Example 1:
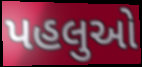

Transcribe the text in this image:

પહલુઓ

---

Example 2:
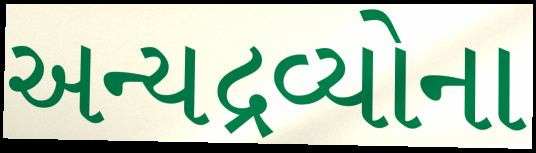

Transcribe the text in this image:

અન્યદ્રવ્યોના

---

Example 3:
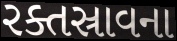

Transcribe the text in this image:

રક્તસ્રાવના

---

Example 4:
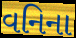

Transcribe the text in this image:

વનિના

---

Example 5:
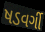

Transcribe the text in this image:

ષડવર્ગી